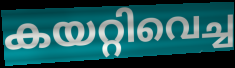
കയറ്റിവെച്ച